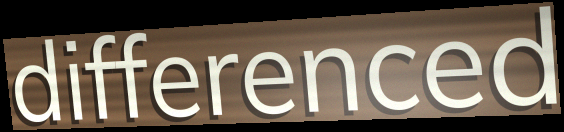
differenced